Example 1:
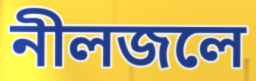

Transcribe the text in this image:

নীলজলে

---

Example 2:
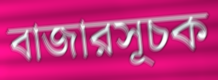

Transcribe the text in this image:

বাজারসূচক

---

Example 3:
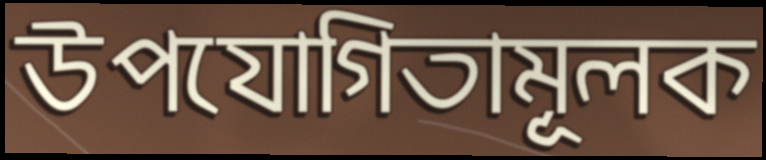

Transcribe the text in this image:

উপযোগিতামূলক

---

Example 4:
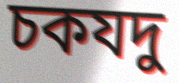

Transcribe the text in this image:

চকযদু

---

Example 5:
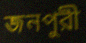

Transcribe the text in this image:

জনপুরী